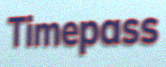
Timepass